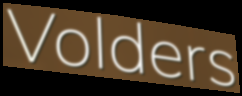
Volders